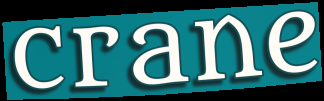
crane